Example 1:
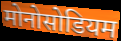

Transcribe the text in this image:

मोनोसोडियम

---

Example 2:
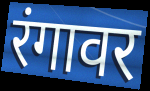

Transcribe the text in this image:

रंगावर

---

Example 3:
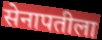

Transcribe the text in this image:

सेनापतीला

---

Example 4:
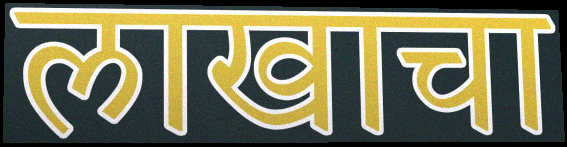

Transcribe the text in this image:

लाखाचा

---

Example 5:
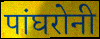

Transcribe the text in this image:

पांघरोनी